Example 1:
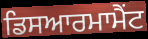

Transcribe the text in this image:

ਡਿਸਆਰਮਾਮੈਂਟ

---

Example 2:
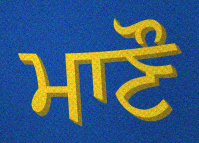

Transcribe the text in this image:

ਮਾਣੌ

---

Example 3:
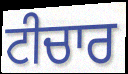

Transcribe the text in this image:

ਟੀਚਾਰ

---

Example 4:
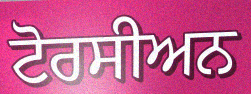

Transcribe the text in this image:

ਟੋਰਸੀਅਨ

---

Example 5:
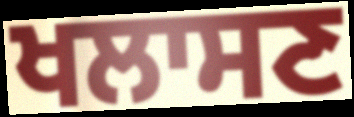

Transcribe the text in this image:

ਖਲਾਸਣ